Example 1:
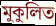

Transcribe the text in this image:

মুকুলিত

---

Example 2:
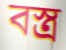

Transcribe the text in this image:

বস্ত্র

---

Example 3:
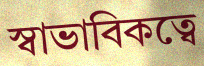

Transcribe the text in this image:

স্বাভাবিকত্বে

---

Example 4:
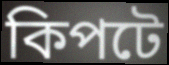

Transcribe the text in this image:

কিপটে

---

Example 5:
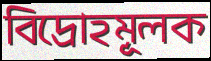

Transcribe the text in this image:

বিদ্রোহমূলক